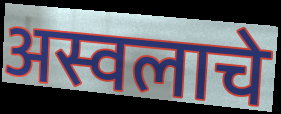
अस्वलाचे